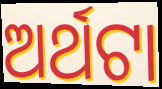
ଅର୍ଥଟା